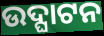
ଉଦ୍ଘାଟନ